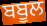
ਬਬੂਲ